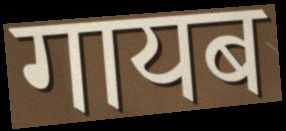
गायब